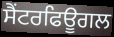
ਸੈਂਟਰਫਿਊਗਲ